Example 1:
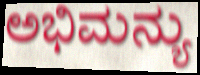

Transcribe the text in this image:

ಅಭಿಮನ್ಯು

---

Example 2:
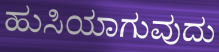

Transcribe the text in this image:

ಹುಸಿಯಾಗುವುದು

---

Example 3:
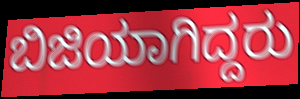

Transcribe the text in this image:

ಬಿಜಿಯಾಗಿದ್ದರು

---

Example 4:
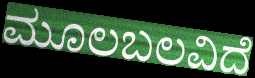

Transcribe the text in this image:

ಮೂಲಬಲವಿದೆ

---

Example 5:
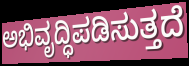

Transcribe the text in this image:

ಅಭಿವೃದ್ಧಿಪಡಿಸುತ್ತದೆ